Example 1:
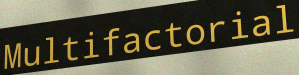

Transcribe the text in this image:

Multifactorial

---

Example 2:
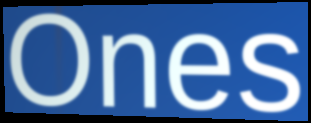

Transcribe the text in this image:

Ones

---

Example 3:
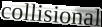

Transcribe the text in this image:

collisional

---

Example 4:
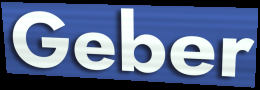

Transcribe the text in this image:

Geber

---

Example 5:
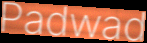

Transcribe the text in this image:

Padwad